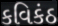
કવિકંઠ